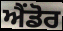
ਐਂਡੋਰ